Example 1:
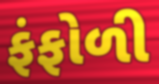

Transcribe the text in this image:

ફંફોળી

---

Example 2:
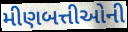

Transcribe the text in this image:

મીણબત્તીઓની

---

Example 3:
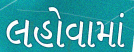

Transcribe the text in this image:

લહોવામાં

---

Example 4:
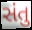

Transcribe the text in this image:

સંતુ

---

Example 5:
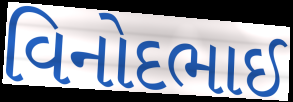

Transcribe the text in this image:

વિનોદભાઈ